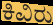
ಕಿವಿರು